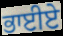
ਭਾਈਏ